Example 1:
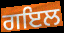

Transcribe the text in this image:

ਗਇਲ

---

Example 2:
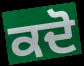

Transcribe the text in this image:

ਕਦੋ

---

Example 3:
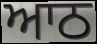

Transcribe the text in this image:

ਆਠ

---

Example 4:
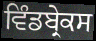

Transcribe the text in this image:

ਵਿੰਡਬ੍ਰੇਕਸ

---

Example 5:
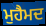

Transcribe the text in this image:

ਮੁਹੈਮਦ